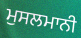
ਮੁਸਲਮਾਨੀ